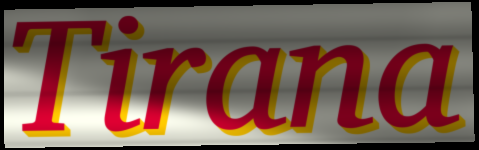
Tirana